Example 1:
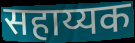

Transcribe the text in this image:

सहाय्यक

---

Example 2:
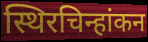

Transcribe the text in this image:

स्थिरचिन्हांकन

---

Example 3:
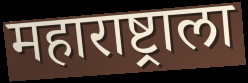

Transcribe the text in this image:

महाराष्ट्राला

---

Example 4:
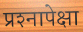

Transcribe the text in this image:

प्रश्नापेक्षा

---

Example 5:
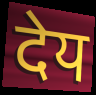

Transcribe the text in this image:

देय